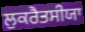
ਲੁਕਰੈਤਸੀਯਾ